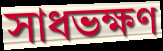
সাধভক্ষণ